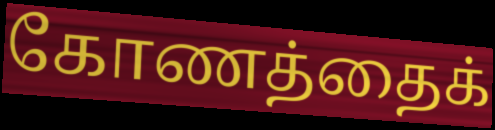
கோணத்தைக்